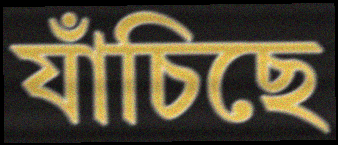
যাঁচিছে